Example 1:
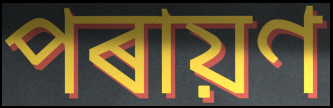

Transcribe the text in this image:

পৰায়ণ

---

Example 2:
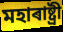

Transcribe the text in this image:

মহাৰাষ্ট্ৰী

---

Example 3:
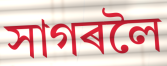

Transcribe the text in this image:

সাগৰলৈ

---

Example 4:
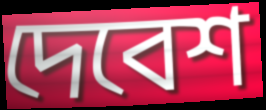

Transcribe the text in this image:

দেবেশ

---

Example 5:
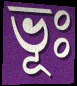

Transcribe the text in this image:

ভূঃ